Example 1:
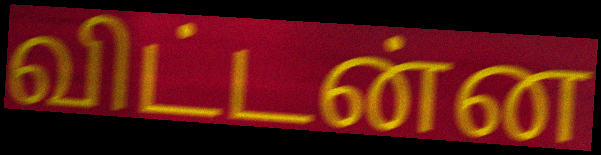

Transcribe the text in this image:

விட்டன்ன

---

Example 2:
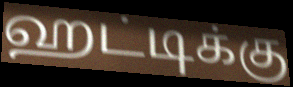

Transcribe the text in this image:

ஹட்டிக்கு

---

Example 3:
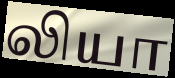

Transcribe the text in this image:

லியா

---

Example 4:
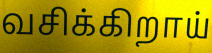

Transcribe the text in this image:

வசிக்கிறாய்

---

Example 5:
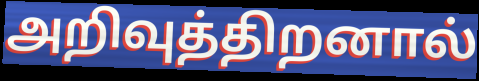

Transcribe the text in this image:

அறிவுத்திறனால்